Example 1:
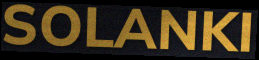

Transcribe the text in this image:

SOLANKI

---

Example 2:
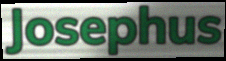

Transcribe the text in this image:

Josephus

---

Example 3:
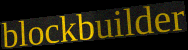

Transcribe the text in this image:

blockbuilder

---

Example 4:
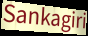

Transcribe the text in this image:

Sankagiri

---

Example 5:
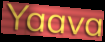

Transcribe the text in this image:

Yaava